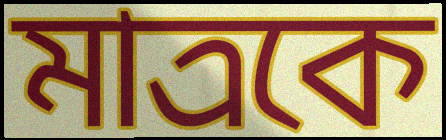
মাত্ৰকে